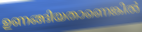
ഉണങ്ങിയതാണെങ്കിൽ